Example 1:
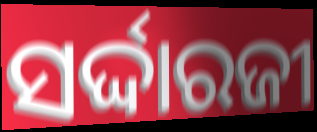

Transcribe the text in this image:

ସର୍ଦ୍ଦାରଜୀ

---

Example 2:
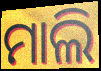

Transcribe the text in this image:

ମାଲି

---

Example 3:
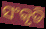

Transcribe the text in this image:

ସଂକୃତି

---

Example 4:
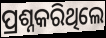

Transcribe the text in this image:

ପ୍ରଶ୍ନକରିଥିଲେ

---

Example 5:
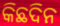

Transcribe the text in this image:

କିଛଦିନ